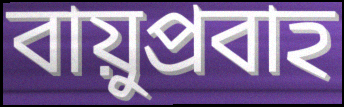
বায়ুপ্রবাহ